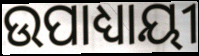
ଉପାଧ୍ୟାୟୀ